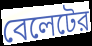
বেলেটের